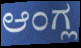
ಆಂಗ್ಲ